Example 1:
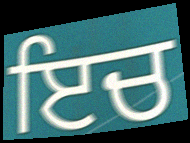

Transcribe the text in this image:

ਇਚ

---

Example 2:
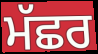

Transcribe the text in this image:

ਮੱਛਰ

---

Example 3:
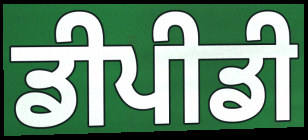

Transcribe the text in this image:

ਡੀਪੀਡੀ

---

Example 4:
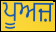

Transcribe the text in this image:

ਪੂਅਜ਼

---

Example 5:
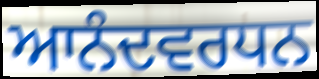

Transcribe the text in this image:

ਆਨੰਦਵਰਧਨ